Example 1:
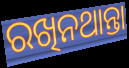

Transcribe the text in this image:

ରଖିନଥାନ୍ତା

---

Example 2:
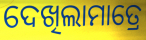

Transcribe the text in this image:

ଦେଖିଲାମାତ୍ରେ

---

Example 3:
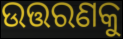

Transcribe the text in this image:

ଉତ୍ତରଣକୁ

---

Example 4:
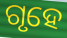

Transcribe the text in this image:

ଗୃହେ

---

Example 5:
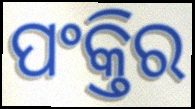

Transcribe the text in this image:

ପଂକ୍ତିର